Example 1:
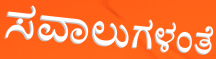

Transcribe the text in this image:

ಸವಾಲುಗಳಂತೆ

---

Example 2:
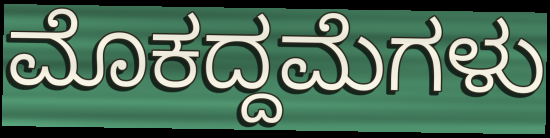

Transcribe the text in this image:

ಮೊಕದ್ದಮೆಗಳು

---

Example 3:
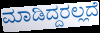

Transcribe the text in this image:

ಮಾಡಿದ್ದರಲ್ಲದೆ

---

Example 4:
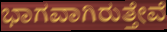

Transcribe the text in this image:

ಭಾಗವಾಗಿರುತ್ತೇವೆ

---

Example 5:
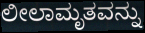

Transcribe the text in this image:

ಲೀಲಾಮೃತವನ್ನು